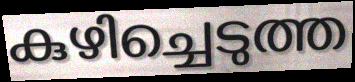
കുഴിച്ചെടുത്ത